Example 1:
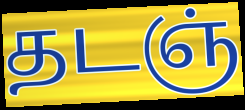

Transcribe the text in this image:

தடஞ்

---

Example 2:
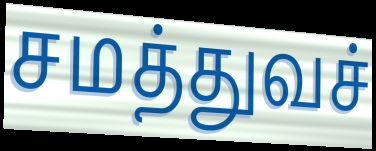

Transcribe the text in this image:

சமத்துவச்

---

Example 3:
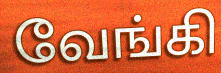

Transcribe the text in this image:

வேங்கி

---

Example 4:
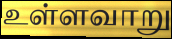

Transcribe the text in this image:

உள்ளவாறு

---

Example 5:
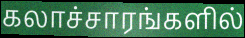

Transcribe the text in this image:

கலாச்சாரங்களில்